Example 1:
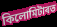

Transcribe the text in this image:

কিলোমিটাৰত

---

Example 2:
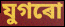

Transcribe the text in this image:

যুগৰো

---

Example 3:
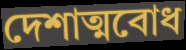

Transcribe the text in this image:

দেশাত্মবোধ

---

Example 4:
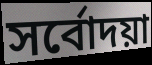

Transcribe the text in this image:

সৰ্বোদয়া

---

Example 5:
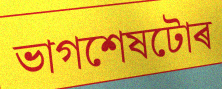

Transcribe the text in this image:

ভাগশেষটোৰ